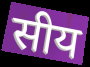
सीय